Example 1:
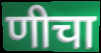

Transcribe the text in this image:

णीचा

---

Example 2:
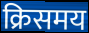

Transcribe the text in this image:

क्रिसमय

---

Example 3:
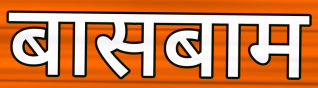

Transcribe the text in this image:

बासबाम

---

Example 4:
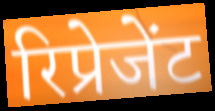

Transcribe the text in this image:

रिप्रेजेंट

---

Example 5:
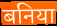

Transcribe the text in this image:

बनिया